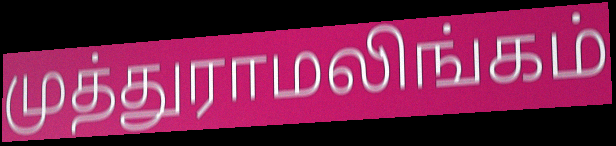
முத்துராமலிங்கம்